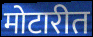
मोटारीत